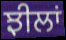
ਝੀਲਾਂ